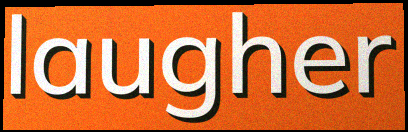
laugher